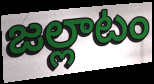
జల్లాటం